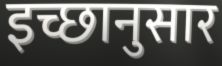
इच्‍छानुसार